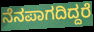
ನೆನಪಾಗದಿದ್ದರೆ